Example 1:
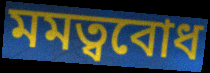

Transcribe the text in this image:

মমত্ববোধ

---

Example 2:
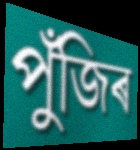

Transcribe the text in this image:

পুঁজিৰ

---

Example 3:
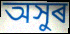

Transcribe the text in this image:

অসুৰ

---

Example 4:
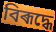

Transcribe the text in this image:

বিৰূদ্ধে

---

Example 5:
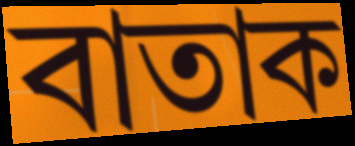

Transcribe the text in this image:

বাতাক